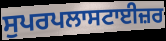
ਸੁਪਰਪਲਾਸਟਾਈਜ਼ਰ